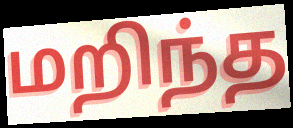
மறிந்த